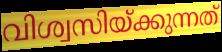
വിശ്വസിയ്ക്കുന്നത്